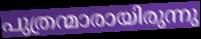
പുത്രന്മാരായിരുന്നു